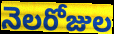
నెలరోజుల